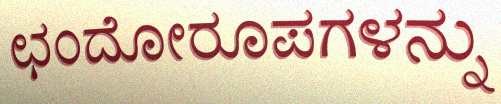
ಛಂದೋರೂಪಗಳನ್ನು